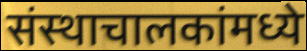
संस्थाचालकांमध्ये